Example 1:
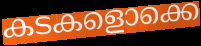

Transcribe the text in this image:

കടകളൊക്കെ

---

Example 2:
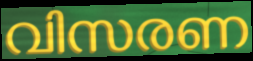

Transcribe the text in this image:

വിസരണ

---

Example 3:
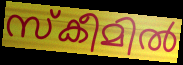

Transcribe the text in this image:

സ്കീമിൽ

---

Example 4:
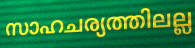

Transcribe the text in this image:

സാഹചര്യത്തിലല്ല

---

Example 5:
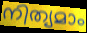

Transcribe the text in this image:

നിത്യമാം